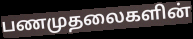
பணமுதலைகளின்